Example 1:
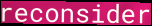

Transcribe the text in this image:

reconsider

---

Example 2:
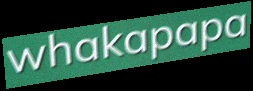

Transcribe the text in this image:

whakapapa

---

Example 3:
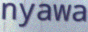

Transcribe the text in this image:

nyawa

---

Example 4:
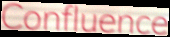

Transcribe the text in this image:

Confluence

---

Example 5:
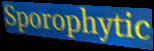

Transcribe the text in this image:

Sporophytic